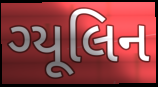
ગ્યૂલિન